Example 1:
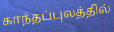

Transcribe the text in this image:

காந்தப்புலத்தில்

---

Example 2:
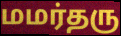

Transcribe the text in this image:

மமர்தரு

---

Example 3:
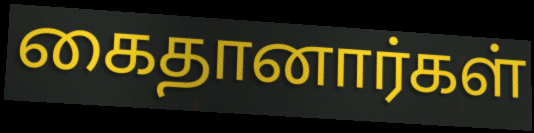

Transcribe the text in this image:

கைதானார்கள்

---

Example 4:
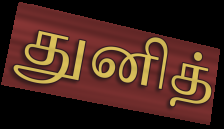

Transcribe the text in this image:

துனித்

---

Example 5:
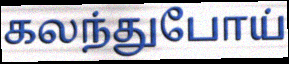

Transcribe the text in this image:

கலந்துபோய்